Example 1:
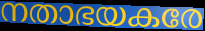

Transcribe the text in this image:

നതാഭയകരേ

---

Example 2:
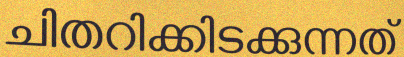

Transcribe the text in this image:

ചിതറിക്കിടക്കുന്നത്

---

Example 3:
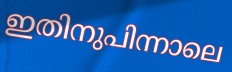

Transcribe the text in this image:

ഇതിനുപിന്നാലെ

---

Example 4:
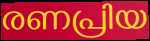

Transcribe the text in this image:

രണപ്രിയ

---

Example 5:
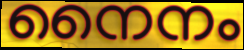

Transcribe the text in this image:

നൈനം